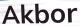
Akbor